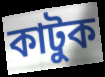
কাটুক